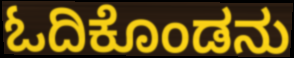
ಓದಿಕೊಂಡನು